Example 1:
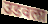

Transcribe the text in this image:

उडवला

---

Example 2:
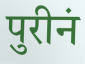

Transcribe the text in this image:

पुरीनं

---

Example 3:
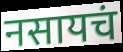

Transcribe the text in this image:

नसायचं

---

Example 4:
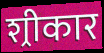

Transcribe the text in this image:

श्रीकार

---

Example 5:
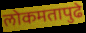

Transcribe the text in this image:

लोकमतापुढे